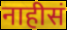
नाहीसं